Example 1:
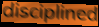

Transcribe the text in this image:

disciplined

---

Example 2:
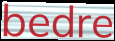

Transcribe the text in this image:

bedre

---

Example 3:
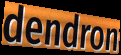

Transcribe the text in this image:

dendron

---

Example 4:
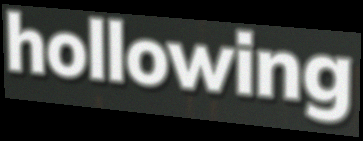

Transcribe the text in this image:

hollowing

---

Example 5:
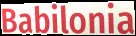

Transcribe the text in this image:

Babilonia